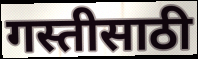
गस्तीसाठी